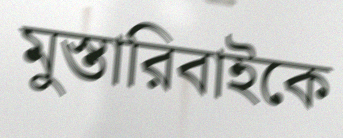
মুস্তারিবাইকে